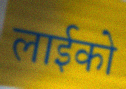
लाईको